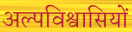
अल्पविश्वासियों